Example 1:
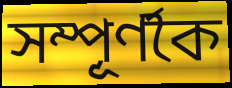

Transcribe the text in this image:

সম্পূৰ্ণকৈ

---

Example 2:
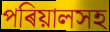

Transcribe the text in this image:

পৰিয়ালসহ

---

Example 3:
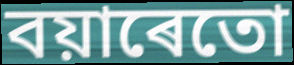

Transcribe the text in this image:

বয়াৰেতো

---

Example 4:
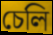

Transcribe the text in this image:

চেলি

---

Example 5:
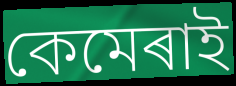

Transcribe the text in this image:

কেমেৰাই